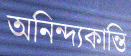
অনিন্দ্যকান্তি